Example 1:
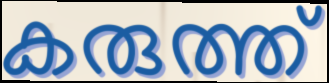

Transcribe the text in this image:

കരുത്ത്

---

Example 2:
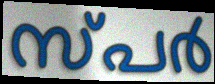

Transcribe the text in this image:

സ്പർ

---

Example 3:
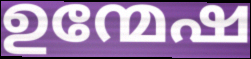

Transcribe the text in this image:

ഉന്മേഷ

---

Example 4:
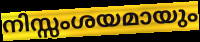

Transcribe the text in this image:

നിസ്സംശയമായും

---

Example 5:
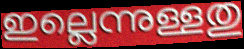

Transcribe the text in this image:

ഇല്ലെന്നുള്ളതു